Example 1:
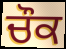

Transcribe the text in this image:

ਚੌਕ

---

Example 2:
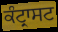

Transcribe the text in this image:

ਕੰਟ੍ਰਾਸਟ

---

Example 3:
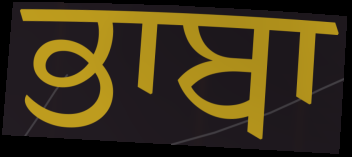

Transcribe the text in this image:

ਭਾਬਾ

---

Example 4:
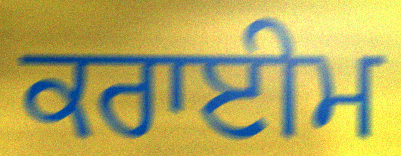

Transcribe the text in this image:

ਕਰਾਈਮ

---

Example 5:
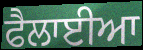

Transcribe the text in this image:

ਫੈਲਾਈਆ